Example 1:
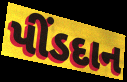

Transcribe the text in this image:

પીંડદાન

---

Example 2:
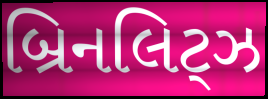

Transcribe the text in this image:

બ્રિનલિટ્ઝ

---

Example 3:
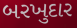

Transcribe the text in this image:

બરખુદાર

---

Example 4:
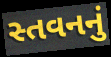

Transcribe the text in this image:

સ્તવનનું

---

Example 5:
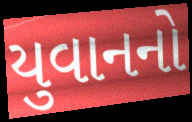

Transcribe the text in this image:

યુવાનનો